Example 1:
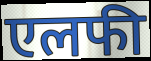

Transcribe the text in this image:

एलफी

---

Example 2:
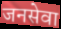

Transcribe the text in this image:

जनसेवा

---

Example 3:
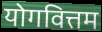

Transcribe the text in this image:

योगवित्तम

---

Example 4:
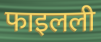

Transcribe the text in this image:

फाइलली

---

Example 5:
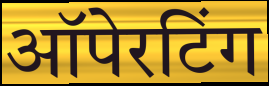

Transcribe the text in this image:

ऑपेरटिंग